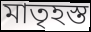
মাতৃহস্ত